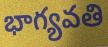
భాగ్యవతి